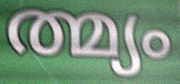
ത്മ്യം